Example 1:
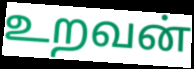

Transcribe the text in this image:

உறவன்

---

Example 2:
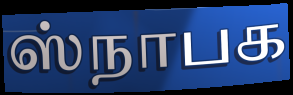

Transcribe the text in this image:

ஸ்நாபக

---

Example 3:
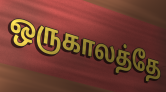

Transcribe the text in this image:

ஒருகாலத்தே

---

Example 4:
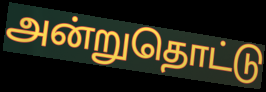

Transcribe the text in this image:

அன்றுதொட்டு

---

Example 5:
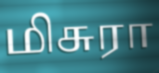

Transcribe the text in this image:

மிசுரா